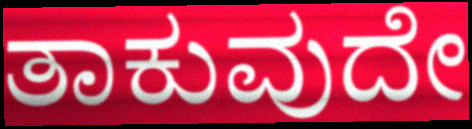
ತಾಕುವುದೇ